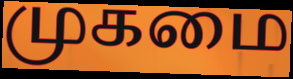
முகமை